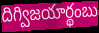
దిగ్విజయార్థంబు